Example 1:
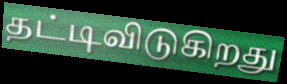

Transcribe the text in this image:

தட்டிவிடுகிறது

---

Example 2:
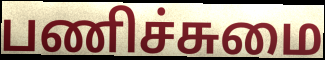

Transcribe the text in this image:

பணிச்சுமை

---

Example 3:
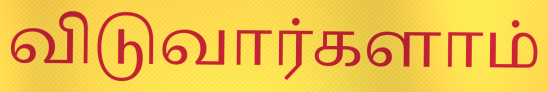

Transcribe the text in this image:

விடுவார்களாம்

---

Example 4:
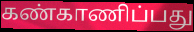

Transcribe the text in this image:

கண்காணிப்பது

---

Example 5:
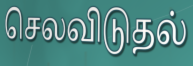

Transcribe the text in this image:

செலவிடுதல்